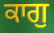
ਕਾਗੁ